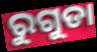
ରୁଗୁଡା